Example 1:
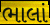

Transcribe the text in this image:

ભાલાં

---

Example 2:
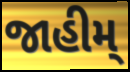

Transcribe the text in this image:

જાહીમ્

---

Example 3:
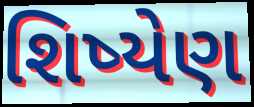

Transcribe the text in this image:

શિષ્યેણ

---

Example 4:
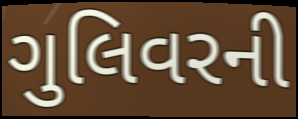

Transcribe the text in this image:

ગુલિવરની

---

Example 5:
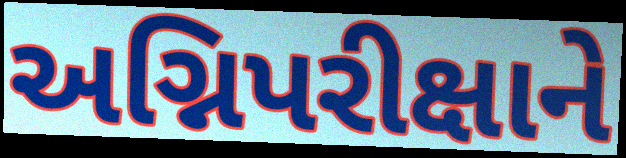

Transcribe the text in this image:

અગ્નિપરીક્ષાને